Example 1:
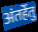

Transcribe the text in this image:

अंतर्हेतु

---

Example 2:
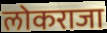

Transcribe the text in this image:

लोकराजा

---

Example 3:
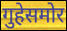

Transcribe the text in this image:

गुहेसमोर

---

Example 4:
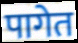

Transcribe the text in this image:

पागेत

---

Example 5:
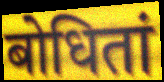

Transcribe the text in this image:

बोधितां